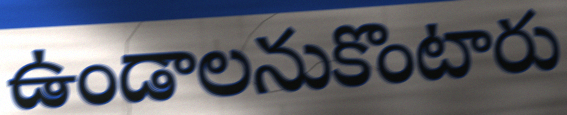
ఉండాలనుకొంటారు